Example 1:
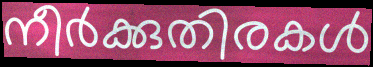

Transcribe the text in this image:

നീർക്കുതിരകൾ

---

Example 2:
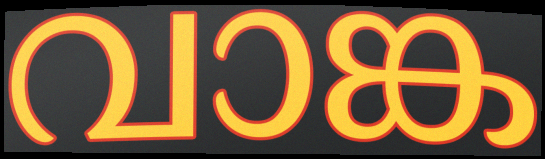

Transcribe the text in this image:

വാങ്ക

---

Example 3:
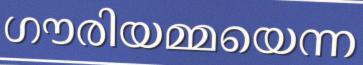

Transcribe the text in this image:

ഗൗരിയമ്മയെന്ന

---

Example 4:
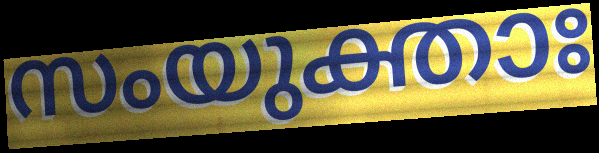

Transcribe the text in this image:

സംയുക്താഃ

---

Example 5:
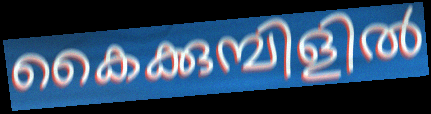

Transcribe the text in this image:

കൈക്കുമ്പിളിൽ